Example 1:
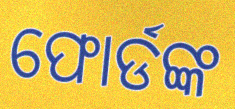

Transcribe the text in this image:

ଫୋର୍ଡଙ୍କ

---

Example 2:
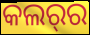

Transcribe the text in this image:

କଲର୍‌ର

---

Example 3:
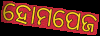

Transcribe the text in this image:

ହୋମପେଜ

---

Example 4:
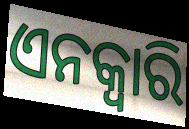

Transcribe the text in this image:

ଏନକ୍ଵାରି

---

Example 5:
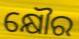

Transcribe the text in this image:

କ୍ଷୌର